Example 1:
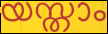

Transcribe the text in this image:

യസ്താം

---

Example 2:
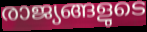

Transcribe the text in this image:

രാജ്യങ്ങളുടെ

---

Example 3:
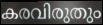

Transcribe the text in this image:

കരവിരുതും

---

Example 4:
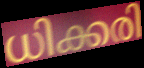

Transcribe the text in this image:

ധിക്കരി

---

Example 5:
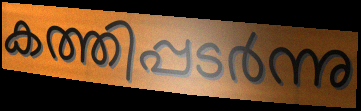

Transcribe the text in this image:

കത്തിപ്പടർന്നു